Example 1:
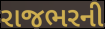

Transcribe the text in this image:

રાજભરની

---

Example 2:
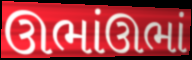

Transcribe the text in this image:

ઊભાંઊભાં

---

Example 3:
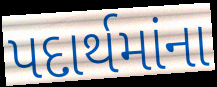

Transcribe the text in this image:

પદાર્થમાંના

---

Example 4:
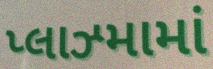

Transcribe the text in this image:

પ્લાઝ્મામાં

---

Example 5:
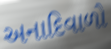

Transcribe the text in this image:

અનાદિવાળો